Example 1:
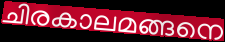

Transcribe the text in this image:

ചിരകാലമങ്ങനെ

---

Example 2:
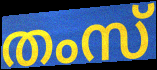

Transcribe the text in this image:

തംസ്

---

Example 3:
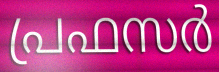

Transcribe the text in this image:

പ്രഫസർ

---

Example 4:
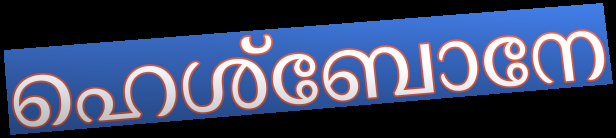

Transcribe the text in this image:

ഹെശ്ബോനേ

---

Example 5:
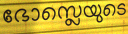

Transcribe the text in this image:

ഭോസ്ലെയുടെ